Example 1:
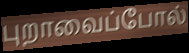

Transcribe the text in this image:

புறாவைப்போல்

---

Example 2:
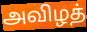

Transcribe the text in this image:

அவிழத்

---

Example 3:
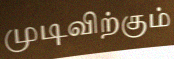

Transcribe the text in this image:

முடிவிற்கும்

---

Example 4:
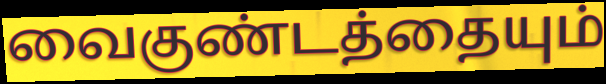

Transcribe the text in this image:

வைகுண்டத்தையும்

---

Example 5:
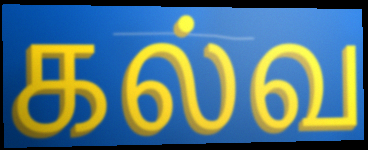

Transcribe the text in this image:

கல்வ